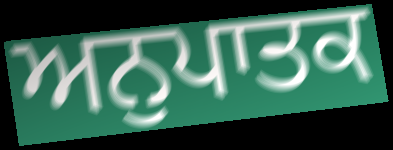
ਅਨੁਪਾਤਕ